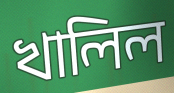
খালিল